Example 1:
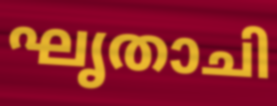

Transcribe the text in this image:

ഘൃതാചി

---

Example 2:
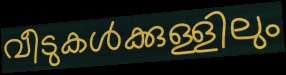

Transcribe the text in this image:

വീടുകൾക്കുള്ളിലും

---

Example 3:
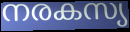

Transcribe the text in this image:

നരകസ്യ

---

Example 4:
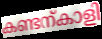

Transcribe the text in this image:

കണ്ടന്കാളി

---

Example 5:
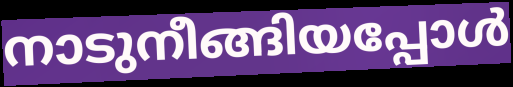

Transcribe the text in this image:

നാടുനീങ്ങിയപ്പോൾ